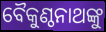
ବୈକୁଣ୍ଠନାଥଙ୍କୁ